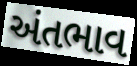
અંતભાવ